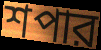
শপার